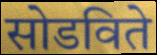
सोडविते